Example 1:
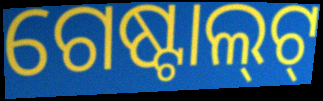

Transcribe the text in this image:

ଗେଷ୍ଟାଲ୍‌ଟ୍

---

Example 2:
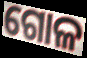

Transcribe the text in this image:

ଗୋଳ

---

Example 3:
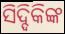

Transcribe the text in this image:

ସିଦ୍ଦିକିଙ୍କ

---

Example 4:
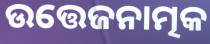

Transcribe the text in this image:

ଉତ୍ତେଜନାତ୍ମକ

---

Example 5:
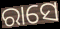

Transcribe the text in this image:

ରାସେ